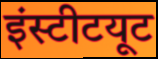
इंस्‍टीटयूट